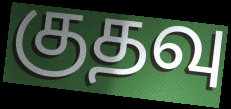
குதவு